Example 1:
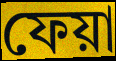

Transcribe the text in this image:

ফেয়া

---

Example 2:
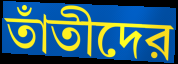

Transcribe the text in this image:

তাঁতীদের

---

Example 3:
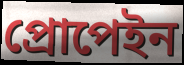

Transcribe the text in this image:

প্রোপেইন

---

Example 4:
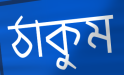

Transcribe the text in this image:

ঠাকুম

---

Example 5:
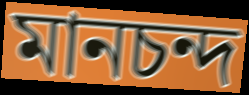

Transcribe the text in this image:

মানচন্দ